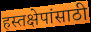
हस्तक्षेपांसाठी